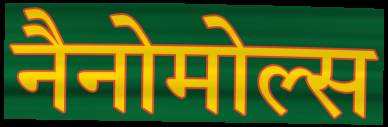
नैनोमोल्स